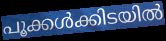
പൂക്കൾക്കിടയിൽ